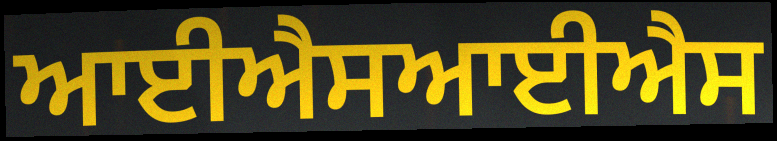
ਆਈਐਸਆਈਐਸ